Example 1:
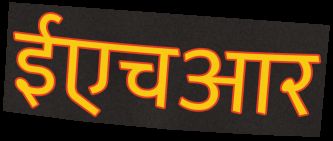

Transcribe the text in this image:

ईएचआर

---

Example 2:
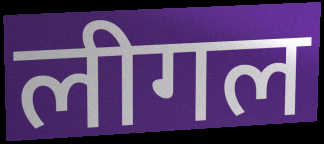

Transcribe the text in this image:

लीगल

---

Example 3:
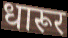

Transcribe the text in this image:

धारूर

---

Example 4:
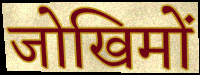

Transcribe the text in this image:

जोखिमों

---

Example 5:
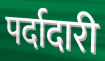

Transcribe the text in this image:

पर्दादारी